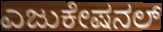
ಎಜುಕೇಷನಲ್